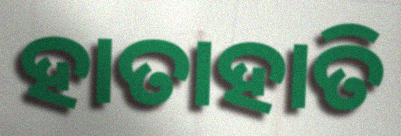
ହାତାହାତି